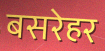
बसरेहर